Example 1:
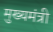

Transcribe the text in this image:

मुख्यमंत्री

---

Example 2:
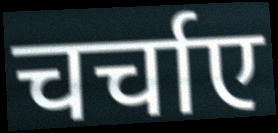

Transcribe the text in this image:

चर्चाए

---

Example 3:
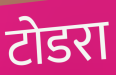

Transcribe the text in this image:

टोडरा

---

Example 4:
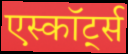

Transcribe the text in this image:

एस्कॉर्ट्स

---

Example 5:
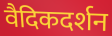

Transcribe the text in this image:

वैदिकदर्शन